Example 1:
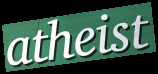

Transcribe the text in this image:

atheist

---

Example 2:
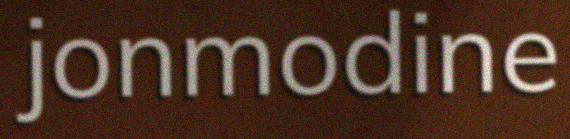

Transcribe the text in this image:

jonmodine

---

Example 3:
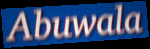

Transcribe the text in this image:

Abuwala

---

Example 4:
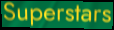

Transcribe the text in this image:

Superstars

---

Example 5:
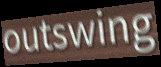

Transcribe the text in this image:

outswing